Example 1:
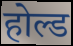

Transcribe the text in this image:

होल्ड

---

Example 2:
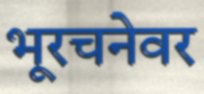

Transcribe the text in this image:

भूरचनेवर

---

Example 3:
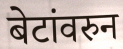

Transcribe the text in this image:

बेटांवरुन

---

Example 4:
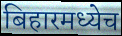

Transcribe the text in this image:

बिहारमध्येच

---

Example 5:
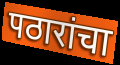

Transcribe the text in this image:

पठारांचा